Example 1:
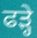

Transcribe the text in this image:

ਫੜ੍ਹੇ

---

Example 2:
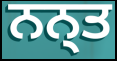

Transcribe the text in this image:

ਨਨ੍ਤ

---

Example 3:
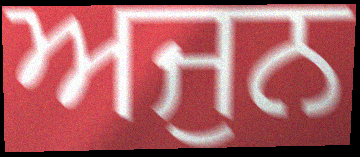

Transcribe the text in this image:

ਅਜੁਨ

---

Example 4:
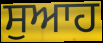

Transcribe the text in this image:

ਸੁਆਹ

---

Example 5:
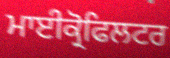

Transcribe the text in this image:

ਮਾਈਕ੍ਰੋਫਿਲਟਰ